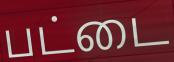
பட்டை